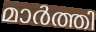
മാർത്തി